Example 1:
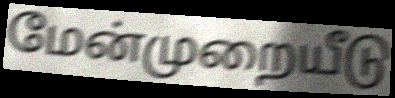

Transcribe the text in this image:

மேன்முறையீடு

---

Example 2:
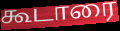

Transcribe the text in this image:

கூடாரை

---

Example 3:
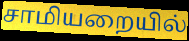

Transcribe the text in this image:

சாமியறையில்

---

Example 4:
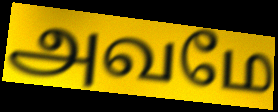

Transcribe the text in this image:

அவமே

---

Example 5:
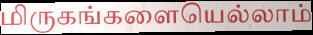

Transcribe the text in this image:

மிருகங்களையெல்லாம்